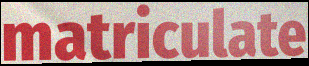
matriculate